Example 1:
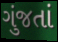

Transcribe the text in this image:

ગુંજતાં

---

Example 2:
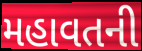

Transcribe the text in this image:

મહાવતની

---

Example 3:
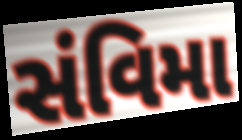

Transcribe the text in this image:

સંવિમા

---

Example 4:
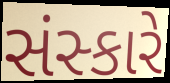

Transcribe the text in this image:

સંસ્કારે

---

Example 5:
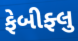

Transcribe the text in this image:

ફેબીફ્લુ